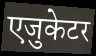
एजुकेटर